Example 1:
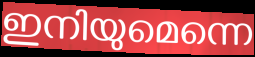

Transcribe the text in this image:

ഇനിയുമെന്നെ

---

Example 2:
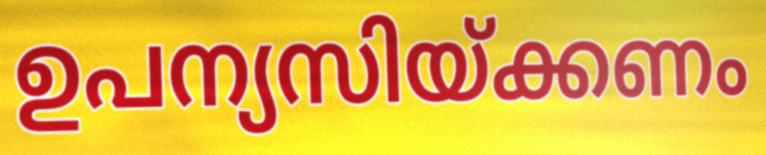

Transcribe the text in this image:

ഉപന്യസിയ്ക്കണം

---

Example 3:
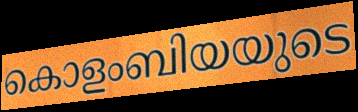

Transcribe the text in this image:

കൊളംബിയയുടെ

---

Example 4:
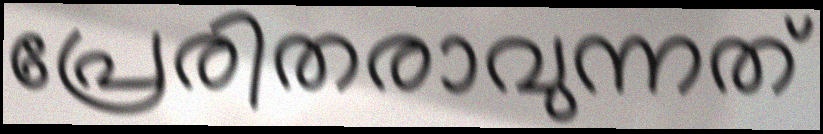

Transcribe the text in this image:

പ്രേരിതരാവുന്നത്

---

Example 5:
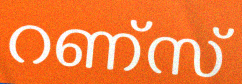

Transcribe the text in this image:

റണ്സ്